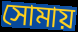
সোমায়